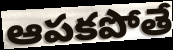
ఆపకపోతే